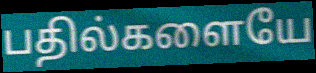
பதில்களையே